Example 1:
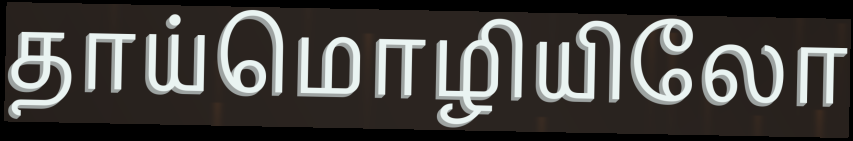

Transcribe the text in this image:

தாய்மொழியிலோ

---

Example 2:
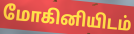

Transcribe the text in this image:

மோகினியிடம்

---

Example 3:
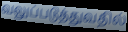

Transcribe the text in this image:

வலுப்படுத்துவதில்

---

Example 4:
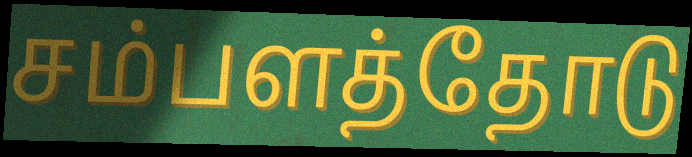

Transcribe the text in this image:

சம்பளத்தோடு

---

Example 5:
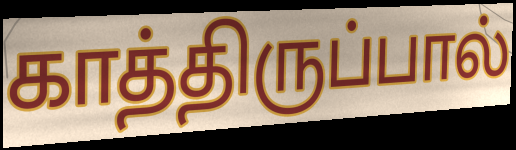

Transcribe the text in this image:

காத்திருப்பால்